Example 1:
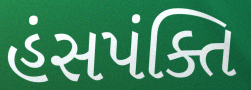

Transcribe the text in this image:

હંસપંક્તિ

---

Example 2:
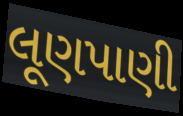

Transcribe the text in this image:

લૂણપાણી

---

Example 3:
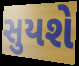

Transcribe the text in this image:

સુયશે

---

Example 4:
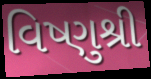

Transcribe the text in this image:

વિષ્ણુશ્રી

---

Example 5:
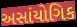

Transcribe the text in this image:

અસાંયોગિક